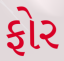
ફોર